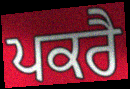
ਪਕਰੈ